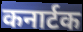
कनार्टक